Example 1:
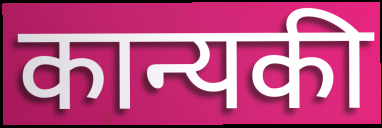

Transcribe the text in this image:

कान्यकी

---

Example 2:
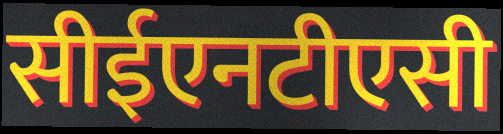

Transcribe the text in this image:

सीईएनटीएसी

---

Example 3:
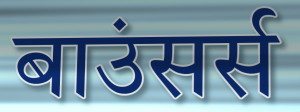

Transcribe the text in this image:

बाउंसर्स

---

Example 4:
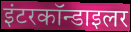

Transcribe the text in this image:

इंटरकॉन्डाइलर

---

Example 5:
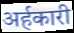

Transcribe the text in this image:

अर्हकारी